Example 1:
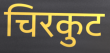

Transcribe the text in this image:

चिरकुट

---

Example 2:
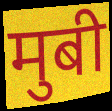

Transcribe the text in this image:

मुबी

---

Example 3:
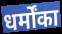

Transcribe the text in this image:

धर्मोंका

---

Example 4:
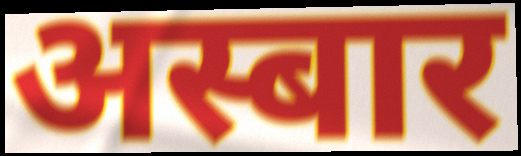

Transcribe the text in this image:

अस्बार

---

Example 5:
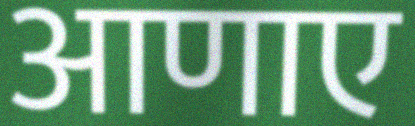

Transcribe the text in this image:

आणाए